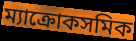
ম্যাক্রোকসমিক